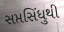
સપ્તસિંધુથી